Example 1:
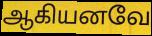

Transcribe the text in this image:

ஆகியனவே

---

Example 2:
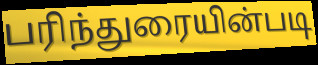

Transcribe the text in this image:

பரிந்துரையின்படி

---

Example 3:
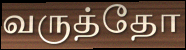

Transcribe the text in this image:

வருத்தோ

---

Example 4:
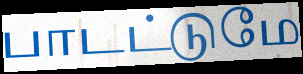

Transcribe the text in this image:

பாடட்டுமே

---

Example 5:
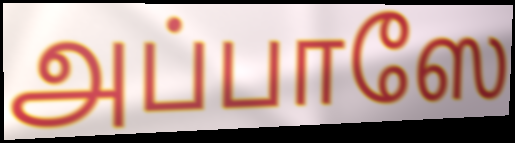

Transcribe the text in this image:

அப்பாஸே